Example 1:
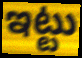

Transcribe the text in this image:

ఇట్టు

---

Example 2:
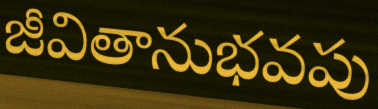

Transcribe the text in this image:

జీవితానుభవపు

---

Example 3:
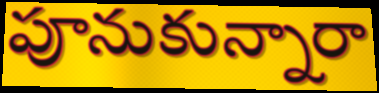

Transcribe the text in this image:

పూనుకున్నారా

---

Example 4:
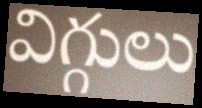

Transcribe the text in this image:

విగ్గులు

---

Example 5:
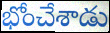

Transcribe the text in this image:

భోంచేశాడు